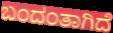
ಬಂದಂತಾಗಿದೆ